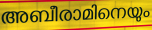
അബീരാമിനെയും